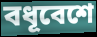
বধূবেশে